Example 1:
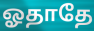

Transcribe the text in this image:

ஓதாதே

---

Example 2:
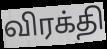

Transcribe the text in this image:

விரக்தி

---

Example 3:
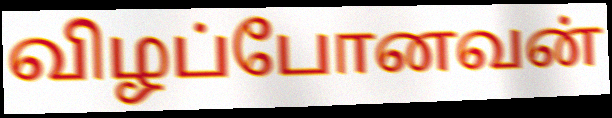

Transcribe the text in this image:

விழப்போனவன்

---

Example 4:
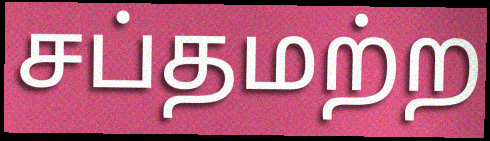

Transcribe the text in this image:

சப்தமற்ற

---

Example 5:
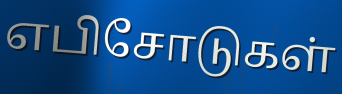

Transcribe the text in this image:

எபிசோடுகள்